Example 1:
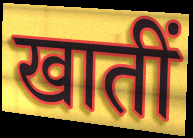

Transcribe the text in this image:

खातीं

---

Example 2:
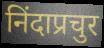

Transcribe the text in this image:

निंदाप्रचुर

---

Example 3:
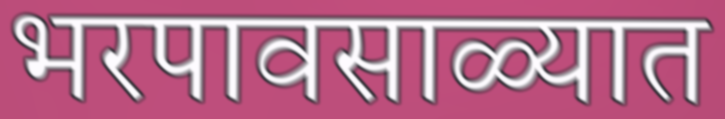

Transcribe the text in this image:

भरपावसाळ्यात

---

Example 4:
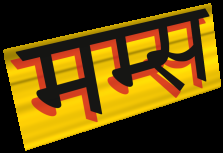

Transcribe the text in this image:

मम्स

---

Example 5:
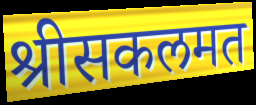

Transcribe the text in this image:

श्रीसकलमत